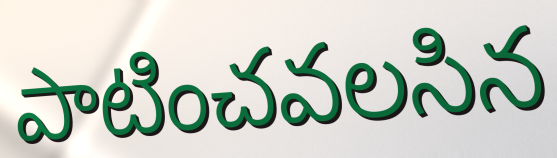
పాటించవలసిన